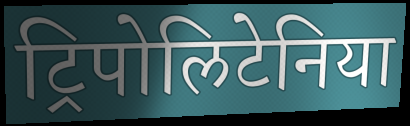
ट्रिपोलिटेनिया